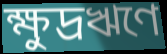
ক্ষুদ্রঋণে